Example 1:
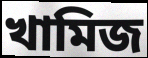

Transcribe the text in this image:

খামিজ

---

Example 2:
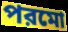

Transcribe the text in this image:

পরমো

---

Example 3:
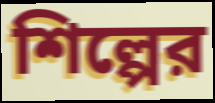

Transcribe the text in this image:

শিল্পের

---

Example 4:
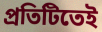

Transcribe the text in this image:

প্রতিটিতেই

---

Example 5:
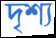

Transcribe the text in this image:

দৃশ্য